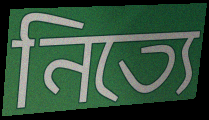
নিত্যে